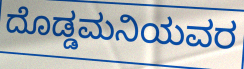
ದೊಡ್ಡಮನಿಯವರ